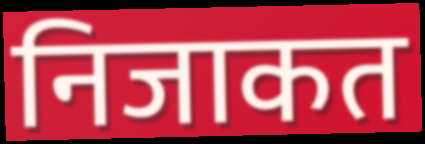
निजाकत